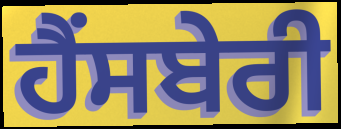
ਹੈਂਸਬੇਰੀ